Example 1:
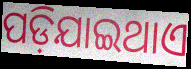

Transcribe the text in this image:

ପଡ଼ିଯାଇଥାଏ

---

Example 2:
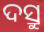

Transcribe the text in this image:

ଦସ୍ରୁ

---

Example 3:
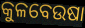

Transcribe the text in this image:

କୁଳବେଉଷା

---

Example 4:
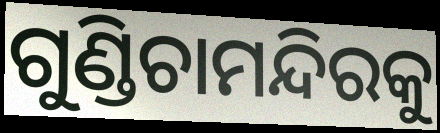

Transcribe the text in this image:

ଗୁଣ୍ଡିଚାମନ୍ଦିରକୁ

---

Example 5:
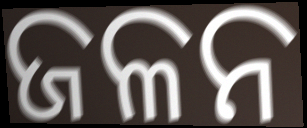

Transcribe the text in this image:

ଜଳନ